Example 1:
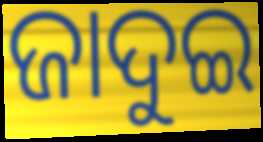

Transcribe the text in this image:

ଜାଦୁଇ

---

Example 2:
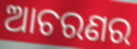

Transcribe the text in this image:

ଆଚରଣର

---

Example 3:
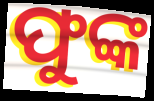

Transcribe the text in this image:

ଫୁଙ୍କ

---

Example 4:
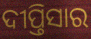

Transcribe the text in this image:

ଦୀପ୍ତିସାର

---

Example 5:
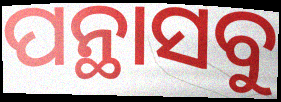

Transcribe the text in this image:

ପନ୍ଥାସବୁ